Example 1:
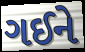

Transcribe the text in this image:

ગઈને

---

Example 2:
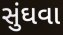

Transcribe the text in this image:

સુંઘવા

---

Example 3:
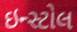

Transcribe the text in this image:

ઇન્સ્ટોલ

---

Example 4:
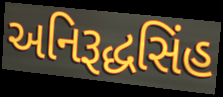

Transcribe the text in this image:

અનિરૂદ્ધસિંહ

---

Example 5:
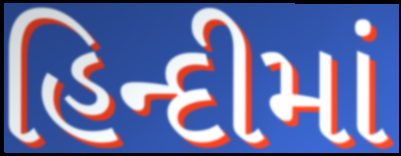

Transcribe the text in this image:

હિન્દીમાં